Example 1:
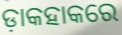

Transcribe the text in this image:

ଡ଼ାକହାକରେ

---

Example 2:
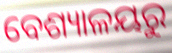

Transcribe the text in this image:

ବେଶ୍ୟାଳୟରୁ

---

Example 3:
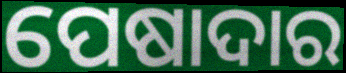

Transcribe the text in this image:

ପେଷାଦାର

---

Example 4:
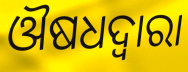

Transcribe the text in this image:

ଔଷଧଦ୍ବାରା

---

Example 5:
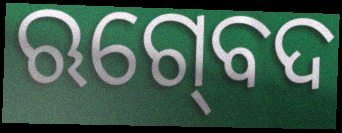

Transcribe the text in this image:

ଋଗ୍‍ବେଦ